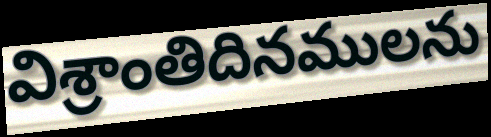
విశ్రాంతిదినములను